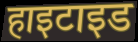
हाइटाइड